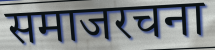
समाजरचना